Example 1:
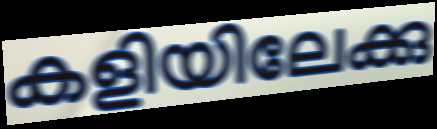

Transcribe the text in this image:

കളിയിലേക്കു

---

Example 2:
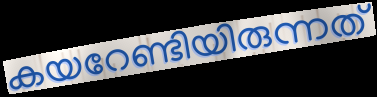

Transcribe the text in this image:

കയറേണ്ടിയിരുന്നത്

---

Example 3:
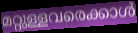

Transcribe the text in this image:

മറ്റുള്ളവരെക്കാൾ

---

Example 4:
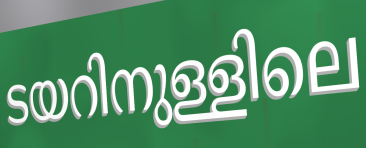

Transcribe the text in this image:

ടയറിനുള്ളിലെ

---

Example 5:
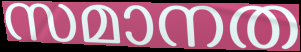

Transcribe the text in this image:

സമാനത